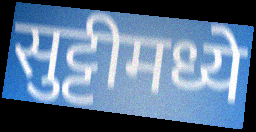
सुट्टीमध्ये